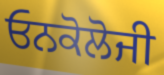
ਓਨਕੋਲੋਜੀ